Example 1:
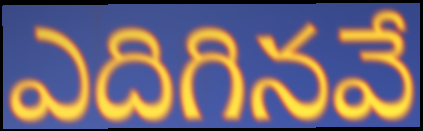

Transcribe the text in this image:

ఎదిగినవే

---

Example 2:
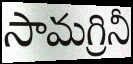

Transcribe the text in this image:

సామగ్రినీ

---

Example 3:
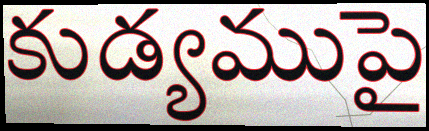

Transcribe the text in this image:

కుడ్యముపై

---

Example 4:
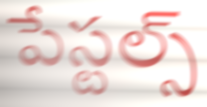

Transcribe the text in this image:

పేస్టల్స్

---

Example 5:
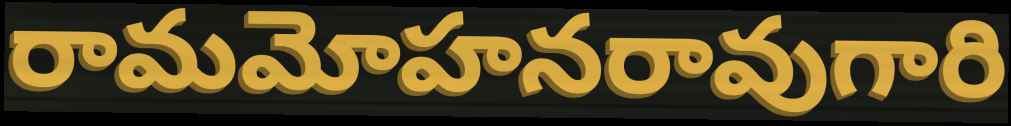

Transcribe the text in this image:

రామమోహనరావుగారి